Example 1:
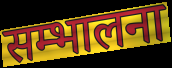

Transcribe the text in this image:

सम्भालना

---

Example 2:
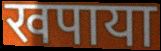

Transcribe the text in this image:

खपाया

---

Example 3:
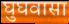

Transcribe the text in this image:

घुघवासा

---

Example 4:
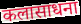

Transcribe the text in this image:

कलासाधना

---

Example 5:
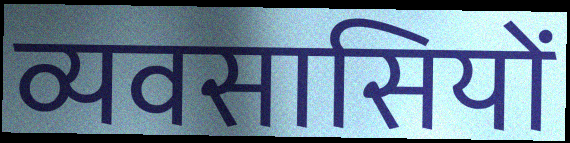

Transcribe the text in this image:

व्यवसासियों